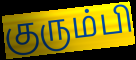
குரும்பி